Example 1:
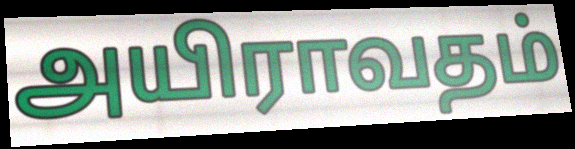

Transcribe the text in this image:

அயிராவதம்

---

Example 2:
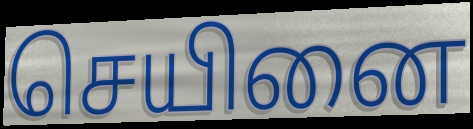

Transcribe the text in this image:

செயினை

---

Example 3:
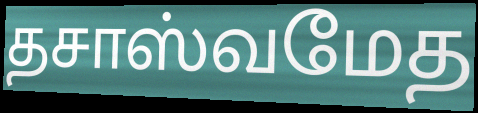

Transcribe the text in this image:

தசாஸ்வமேத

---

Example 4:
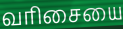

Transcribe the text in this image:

வரிசையை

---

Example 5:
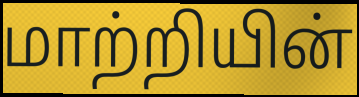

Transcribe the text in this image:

மாற்றியின்